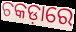
ଚକଡ଼ାରେ